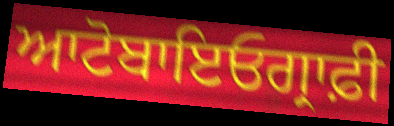
ਆਟੋਬਾਇਓਗ੍ਰਾਫ਼ੀ